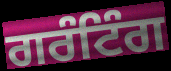
ਗਰੰਟਿੰਗ